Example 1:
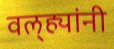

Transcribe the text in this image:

वल्ह्यांनी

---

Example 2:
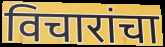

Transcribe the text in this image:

विचारांचा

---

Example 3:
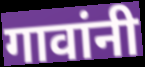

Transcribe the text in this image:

गावांनी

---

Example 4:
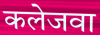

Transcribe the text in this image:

कलेजवा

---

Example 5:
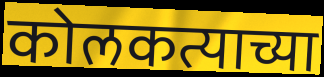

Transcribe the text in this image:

कोलकत्याच्या